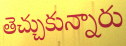
తెచ్చుకున్నారు